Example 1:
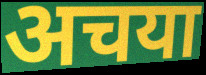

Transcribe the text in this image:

अचया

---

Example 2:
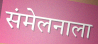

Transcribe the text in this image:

संमेलनाला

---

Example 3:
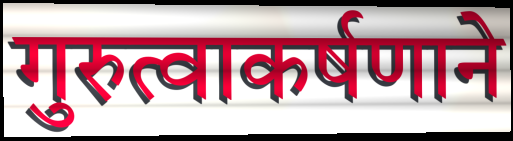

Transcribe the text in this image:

गुरुत्वाकर्षणाने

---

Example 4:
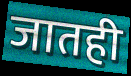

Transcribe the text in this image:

जातही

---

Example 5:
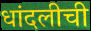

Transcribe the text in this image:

धांदलीची